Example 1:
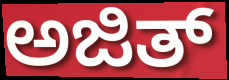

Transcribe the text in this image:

ಅಜಿತ್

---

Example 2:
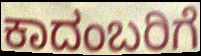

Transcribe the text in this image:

ಕಾದಂಬರಿಗೆ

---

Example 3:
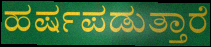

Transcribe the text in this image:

ಹರ್ಷಪಡುತ್ತಾರೆ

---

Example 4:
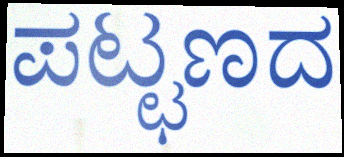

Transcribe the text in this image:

ಪಟ್ಟಣದ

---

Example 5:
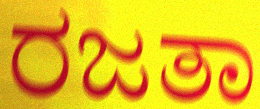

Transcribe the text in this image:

ರಜತಾ